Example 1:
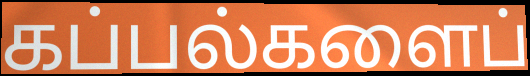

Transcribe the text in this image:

கப்பல்களைப்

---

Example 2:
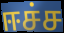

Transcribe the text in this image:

ஈச்ச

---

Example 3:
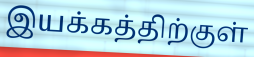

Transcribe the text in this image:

இயக்கத்திற்குள்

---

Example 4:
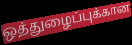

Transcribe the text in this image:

ஒத்துழைப்புக்கான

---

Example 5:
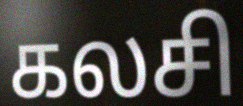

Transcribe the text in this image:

கலசி